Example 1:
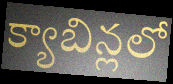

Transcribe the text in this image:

క్యాబిన్లలో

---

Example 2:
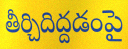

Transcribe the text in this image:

తీర్చిదిద్దడంపై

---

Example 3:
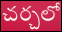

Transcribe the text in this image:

చర్చలో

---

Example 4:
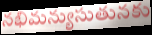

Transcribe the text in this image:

నభిమన్యుసుతునకు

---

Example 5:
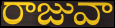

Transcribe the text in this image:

రాజువా